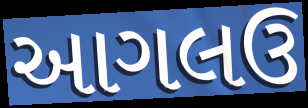
આગલઉ